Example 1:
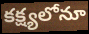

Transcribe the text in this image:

కక్ష్యలోనూ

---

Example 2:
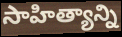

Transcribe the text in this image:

సాహిత్యాన్ని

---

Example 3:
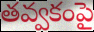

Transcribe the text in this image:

తవ్వకంపై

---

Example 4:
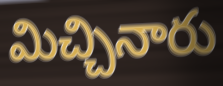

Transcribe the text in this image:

మిచ్చినారు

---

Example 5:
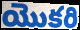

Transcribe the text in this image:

యొకరి